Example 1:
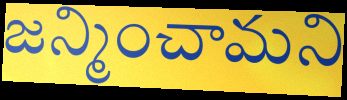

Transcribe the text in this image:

జన్మించామని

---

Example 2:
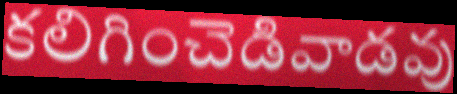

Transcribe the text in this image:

కలిగించెడివాడవు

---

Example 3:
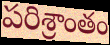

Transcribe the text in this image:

పరిశ్రాంతం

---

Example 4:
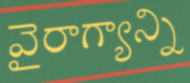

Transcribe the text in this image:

వైరాగ్యాన్ని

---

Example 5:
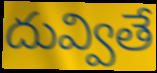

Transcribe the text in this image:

దువ్వితే